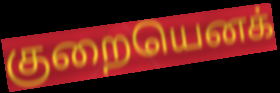
குறையெனக்